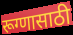
रूग्णासाठी